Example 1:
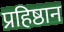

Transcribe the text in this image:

प्रहिष्ठान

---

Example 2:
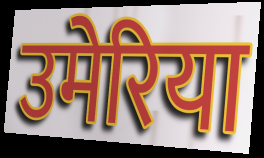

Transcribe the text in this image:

उमेरिया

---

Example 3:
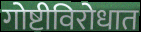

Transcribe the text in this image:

गोष्टीविरोधात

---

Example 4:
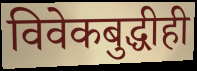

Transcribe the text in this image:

विवेकबुद्धीही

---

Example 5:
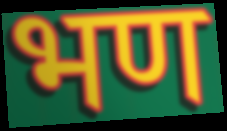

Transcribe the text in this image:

भण